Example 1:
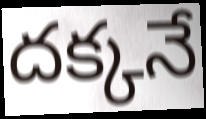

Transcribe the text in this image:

దక్కనే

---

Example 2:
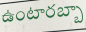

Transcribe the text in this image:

ఉంటారబ్బా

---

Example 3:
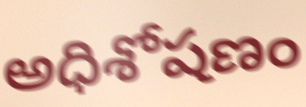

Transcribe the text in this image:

అధిశోషణం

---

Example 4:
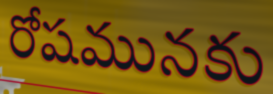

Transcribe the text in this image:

రోషమునకు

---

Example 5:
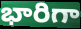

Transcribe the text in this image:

భారిగా